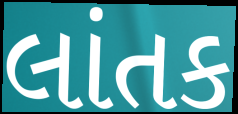
લાંતક